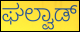
ಘಲ್ವಾಡ್